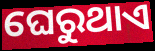
ଘେରୁଥାଏ